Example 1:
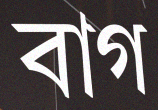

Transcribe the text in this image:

বাগ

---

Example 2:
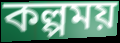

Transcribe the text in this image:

কল্পময়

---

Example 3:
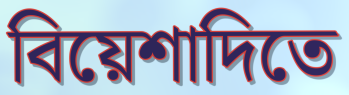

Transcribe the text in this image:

বিয়েশাদিতে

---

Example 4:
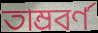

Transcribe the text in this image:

তাম্রবর্ণ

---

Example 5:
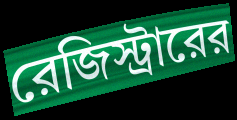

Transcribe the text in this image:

রেজিস্ট্রারের